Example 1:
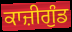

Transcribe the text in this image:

ਕਾਜ਼ੀਗੁੰਡ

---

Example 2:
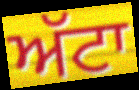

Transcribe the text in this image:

ਅੱਟਾ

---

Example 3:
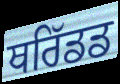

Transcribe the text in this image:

ਥਰਿੱਡਡ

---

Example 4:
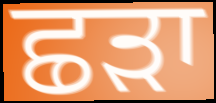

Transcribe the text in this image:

ਛਡ਼ਾ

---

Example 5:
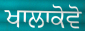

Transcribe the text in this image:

ਖਾਲਾਕੋਵੋ